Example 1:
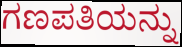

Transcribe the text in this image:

ಗಣಪತಿಯನ್ನು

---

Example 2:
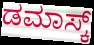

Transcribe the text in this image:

ಡಮಾಸ್ಕ್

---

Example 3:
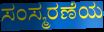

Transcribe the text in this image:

ಸಂಸ್ಮರಣೆಯ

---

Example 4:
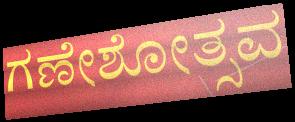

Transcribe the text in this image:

ಗಣೇಶೋತ್ಸವ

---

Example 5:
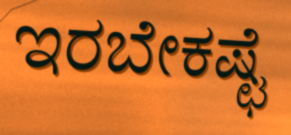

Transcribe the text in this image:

ಇರಬೇಕಷ್ಟೆ